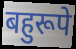
बहुरूपे